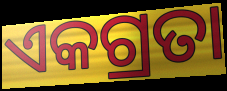
ଏକଗ୍ରତା